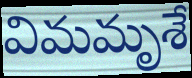
విమమృశే